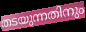
തടയുന്നതിനും